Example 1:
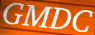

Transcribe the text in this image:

GMDC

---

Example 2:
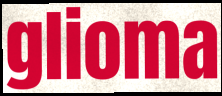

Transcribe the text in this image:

glioma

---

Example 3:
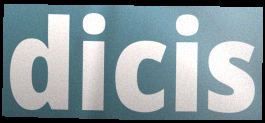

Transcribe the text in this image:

dicis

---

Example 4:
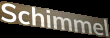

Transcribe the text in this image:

Schimmel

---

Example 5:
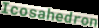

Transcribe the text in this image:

Icosahedron